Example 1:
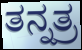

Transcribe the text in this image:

ತನ್ನತ್ರ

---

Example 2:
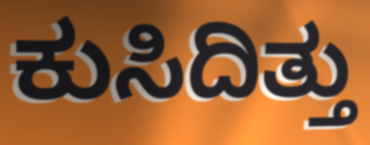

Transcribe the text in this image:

ಕುಸಿದಿತ್ತು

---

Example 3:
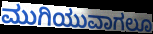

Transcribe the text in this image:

ಮುಗಿಯುವಾಗಲೂ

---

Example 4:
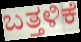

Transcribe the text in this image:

ಬತ್ತಳಿಕೆ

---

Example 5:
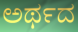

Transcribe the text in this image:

ಅರ್ಥದ